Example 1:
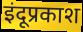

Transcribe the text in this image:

इंदूप्रकाश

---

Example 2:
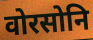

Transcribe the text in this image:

वोरसोनि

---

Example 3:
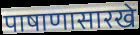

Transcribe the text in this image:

पाषाणासारखे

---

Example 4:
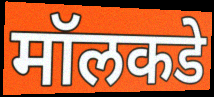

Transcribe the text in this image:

मॉलकडे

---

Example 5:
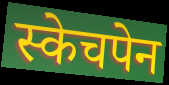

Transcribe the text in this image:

स्केचपेन